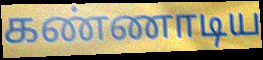
கண்ணாடிய